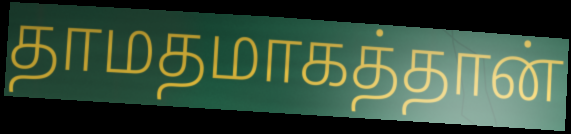
தாமதமாகத்தான்